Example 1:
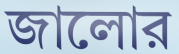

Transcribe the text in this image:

জালোর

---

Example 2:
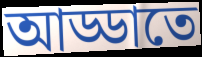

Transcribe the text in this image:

আড্ডাতে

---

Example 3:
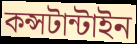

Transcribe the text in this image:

কন্সটান্টাইন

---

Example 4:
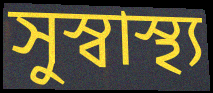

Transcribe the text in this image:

সুস্বাস্থ্য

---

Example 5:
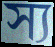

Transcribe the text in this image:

স্য